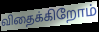
விதைக்கிறோம்